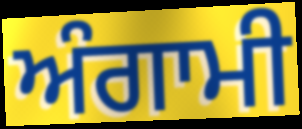
ਅੰਗਾਮੀ